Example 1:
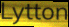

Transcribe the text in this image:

Lytton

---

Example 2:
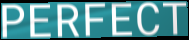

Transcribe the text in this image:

PERFECT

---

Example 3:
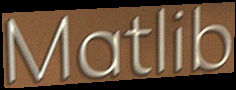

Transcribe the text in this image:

Matlib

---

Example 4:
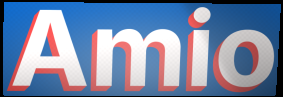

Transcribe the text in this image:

Amio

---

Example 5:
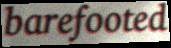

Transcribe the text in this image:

barefooted